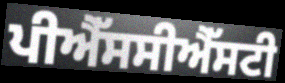
ਪੀਐੱਸਸੀਐੱਸਟੀ